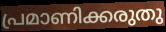
പ്രമാണിക്കരുതു